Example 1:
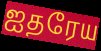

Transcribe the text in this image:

ஐதரேய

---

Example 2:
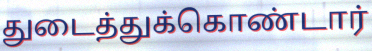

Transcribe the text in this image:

துடைத்துக்கொண்டார்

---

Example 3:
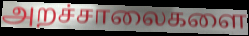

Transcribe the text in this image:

அறச்சாலைகளை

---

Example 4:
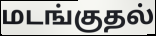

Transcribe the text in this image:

மடங்குதல்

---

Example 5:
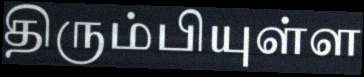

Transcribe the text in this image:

திரும்பியுள்ள